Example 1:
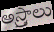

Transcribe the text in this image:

అస్ర్తాలు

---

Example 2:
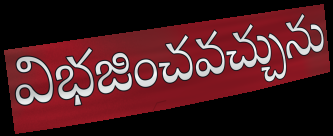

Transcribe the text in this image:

విభజించవచ్చును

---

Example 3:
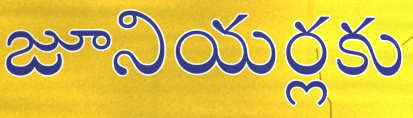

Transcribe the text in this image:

జూనియర్లకు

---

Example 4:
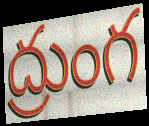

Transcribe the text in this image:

ద్రుంగ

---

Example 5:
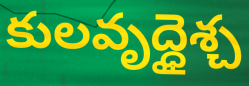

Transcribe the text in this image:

కులవృద్ధైశ్చ